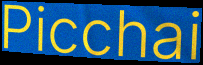
Picchai